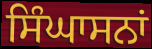
ਸਿੰਘਾਸਨਾਂ